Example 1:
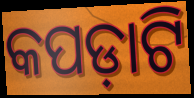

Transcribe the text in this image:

କପଡ଼ାଟି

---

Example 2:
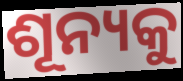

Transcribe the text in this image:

ଶୂନ୍ୟକୁ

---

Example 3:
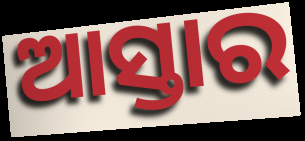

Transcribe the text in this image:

ଆସ୍ତାର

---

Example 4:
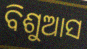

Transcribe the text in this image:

ବିଶୁଆସ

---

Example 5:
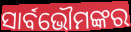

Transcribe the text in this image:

ସାର୍ବଭୌମଙ୍କର